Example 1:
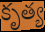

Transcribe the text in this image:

కృత్య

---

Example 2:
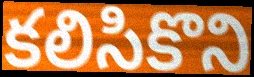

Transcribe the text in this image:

కలిసికొని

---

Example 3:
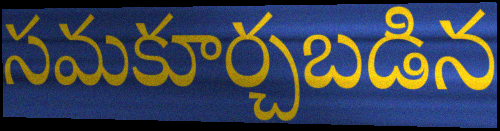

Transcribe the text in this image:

సమకూర్చబడిన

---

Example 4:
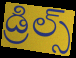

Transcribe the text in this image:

డ్రిల్స్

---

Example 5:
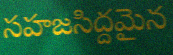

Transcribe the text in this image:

సహజసిద్దమైన